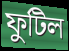
ফুটিল